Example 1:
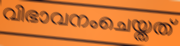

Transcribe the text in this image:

വിഭാവനംചെയ്തത്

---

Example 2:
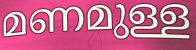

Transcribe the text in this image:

മണമുള്ള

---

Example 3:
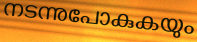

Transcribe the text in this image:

നടന്നുപോകുകയും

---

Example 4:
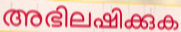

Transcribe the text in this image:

അഭിലഷിക്കുക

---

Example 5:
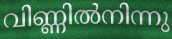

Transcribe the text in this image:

വിണ്ണിൽനിന്നു